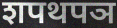
शपथपञ